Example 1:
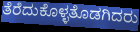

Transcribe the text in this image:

ತೆರೆದುಕೊಳ್ಳತೊಡಗಿದರು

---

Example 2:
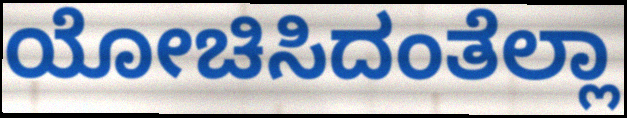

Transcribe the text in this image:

ಯೋಚಿಸಿದಂತೆಲ್ಲಾ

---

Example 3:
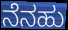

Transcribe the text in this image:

ನೆನಹು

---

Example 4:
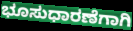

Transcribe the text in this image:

ಭೂಸುಧಾರಣೆಗಾಗಿ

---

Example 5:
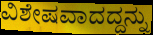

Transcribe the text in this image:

ವಿಶೇಷವಾದದ್ದನ್ನು